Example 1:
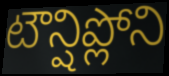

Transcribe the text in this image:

టౌన్షిప్లోని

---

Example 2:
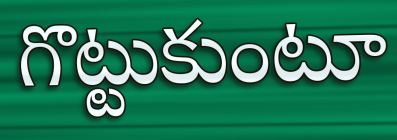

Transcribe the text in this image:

గొట్టుకుంటూ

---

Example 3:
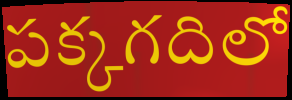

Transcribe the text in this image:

పక్కగదిలో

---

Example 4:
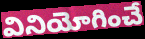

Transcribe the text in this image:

వినియోగించే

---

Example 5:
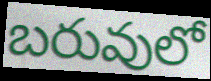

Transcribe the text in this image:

బరువులో